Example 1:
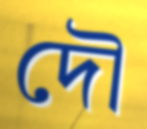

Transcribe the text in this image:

দৌ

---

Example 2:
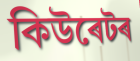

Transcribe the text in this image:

কিউৰেটৰ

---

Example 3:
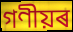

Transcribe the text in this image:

গণীয়ৰ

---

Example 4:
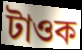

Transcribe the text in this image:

টাওক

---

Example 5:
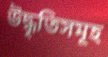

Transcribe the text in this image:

উদ্ধৃতিসমূহ